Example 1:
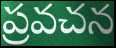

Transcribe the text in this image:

ప్రవచన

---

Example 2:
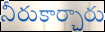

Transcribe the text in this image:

నీరుకార్చారు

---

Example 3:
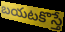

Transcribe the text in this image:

బయటకొస్తే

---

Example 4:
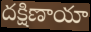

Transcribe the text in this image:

దక్షిణాయా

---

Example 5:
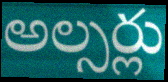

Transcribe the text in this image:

అల్సర్లు